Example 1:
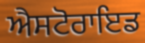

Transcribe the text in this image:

ਐਸਟੋਰਾਇਡ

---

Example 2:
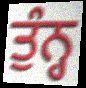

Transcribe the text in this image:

ਤੁੰਨ੍ਹ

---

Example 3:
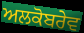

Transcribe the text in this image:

ਅਲਕੋਬਰੇਵ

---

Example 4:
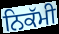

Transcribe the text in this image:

ਨਿਕੱਮੀ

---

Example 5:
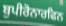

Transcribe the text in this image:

ਬੁਪੀਰੋਨਾਰਫਿਨ